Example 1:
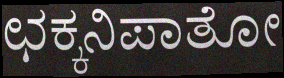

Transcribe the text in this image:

ಛಕ್ಕನಿಪಾತೋ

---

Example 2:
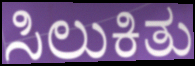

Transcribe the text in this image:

ಸಿಲುಕಿತು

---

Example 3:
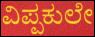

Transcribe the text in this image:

ವಿಪ್ಪಕುಲೇ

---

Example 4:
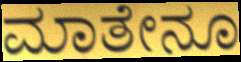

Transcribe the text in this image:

ಮಾತೇನೂ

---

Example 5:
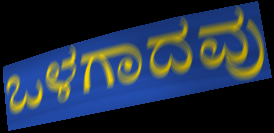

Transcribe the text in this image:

ಒಳಗಾದವು